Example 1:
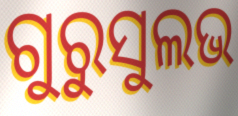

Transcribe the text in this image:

ଗୁରୁସୁଲଭ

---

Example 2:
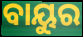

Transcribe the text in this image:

ବାୟୁର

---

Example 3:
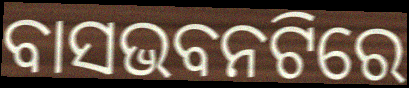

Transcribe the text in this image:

ବାସଭବନଟିରେ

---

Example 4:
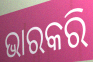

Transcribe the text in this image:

ଭାରକରି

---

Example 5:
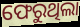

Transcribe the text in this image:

ଫେରୁଥିଲା